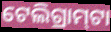
ଟେଲିଗ୍ରାମ୍‍ଟା